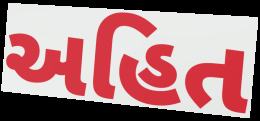
અહિત